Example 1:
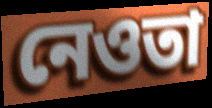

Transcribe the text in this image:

নেওতা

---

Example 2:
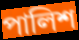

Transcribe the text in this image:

পালিশ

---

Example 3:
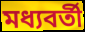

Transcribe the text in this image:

মধ্যবৰ্তী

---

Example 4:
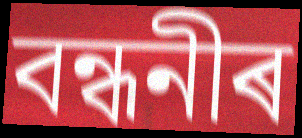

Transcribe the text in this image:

বন্ধনীৰ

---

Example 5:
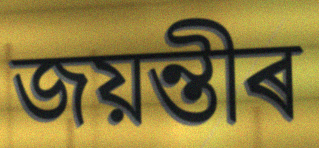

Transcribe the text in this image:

জয়ন্তীৰ